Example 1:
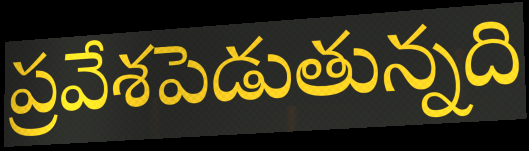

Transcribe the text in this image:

ప్రవేశపెడుతున్నది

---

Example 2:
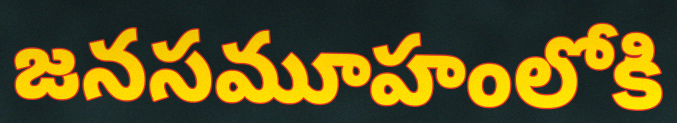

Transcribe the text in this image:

జనసమూహంలోకి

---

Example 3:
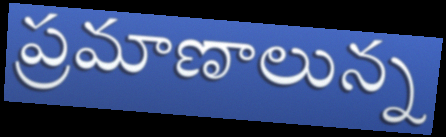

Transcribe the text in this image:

ప్రమాణాలున్న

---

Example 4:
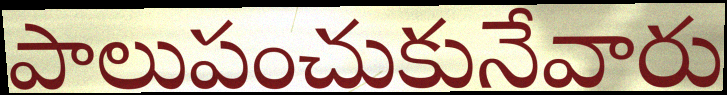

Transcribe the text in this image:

పాలుపంచుకునేవారు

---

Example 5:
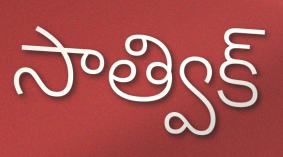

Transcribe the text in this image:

సాత్విక్